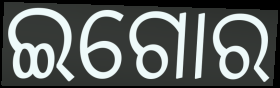
ଇଗୋର